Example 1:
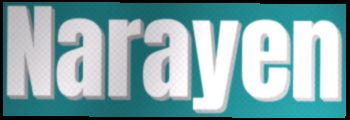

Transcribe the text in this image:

Narayen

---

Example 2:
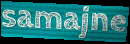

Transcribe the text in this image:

samajne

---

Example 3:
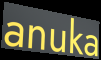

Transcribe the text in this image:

anuka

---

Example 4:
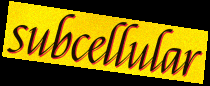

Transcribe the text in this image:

subcellular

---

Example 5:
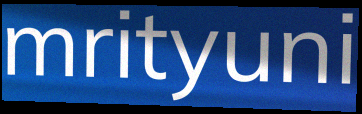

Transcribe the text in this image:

mrityuni